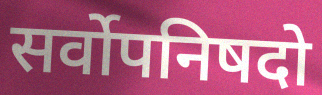
सर्वोपनिषदो